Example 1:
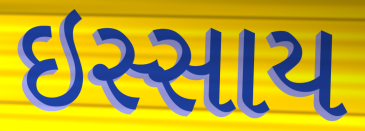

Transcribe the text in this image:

ઇસ્સાય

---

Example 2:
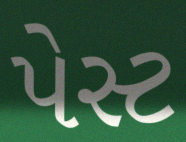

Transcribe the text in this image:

પેસ્ટ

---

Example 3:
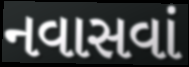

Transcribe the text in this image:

નવાસવાં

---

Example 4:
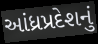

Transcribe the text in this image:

આંધ્રપ્રદેશનું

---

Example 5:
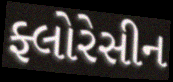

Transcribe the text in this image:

ફ્લોરેસીન